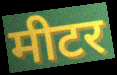
मीटर